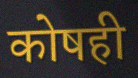
कोषही